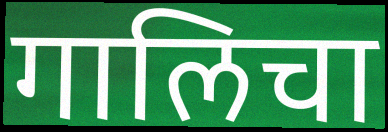
गालिचा